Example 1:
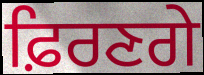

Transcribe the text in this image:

ਫ਼ਿਰਣਗੇ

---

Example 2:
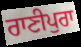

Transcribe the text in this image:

ਰਾਣੀਪੁਰਾ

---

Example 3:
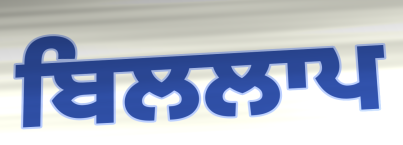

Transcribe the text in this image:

ਬਿਲਲਾਪ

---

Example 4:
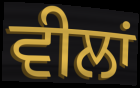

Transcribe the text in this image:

ਵੀਲਾਂ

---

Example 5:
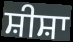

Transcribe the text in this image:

ਸ਼ੀਸ਼ਾ